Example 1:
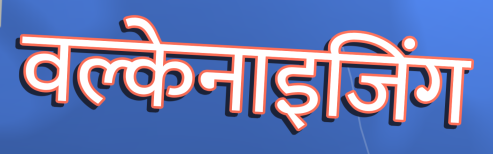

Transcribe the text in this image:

वल्केनाइजिंग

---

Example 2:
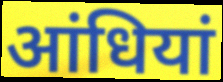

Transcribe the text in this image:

आंधियां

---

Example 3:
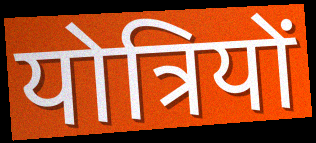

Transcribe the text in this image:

योत्रियों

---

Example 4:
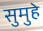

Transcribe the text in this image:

सुमुहे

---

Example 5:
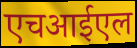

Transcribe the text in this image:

एचआईएल